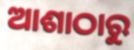
ଆଶାଠାରୁ